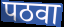
पठवा